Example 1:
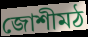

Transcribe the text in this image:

জোশীমঠ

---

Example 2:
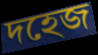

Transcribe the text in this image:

দহেজ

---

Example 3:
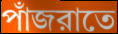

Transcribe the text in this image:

পাঁজরাতে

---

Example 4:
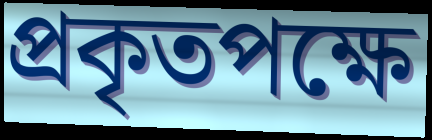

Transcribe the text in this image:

প্রকৃতপক্ষে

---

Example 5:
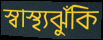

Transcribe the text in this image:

স্বাস্থ্যঝুঁকি